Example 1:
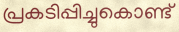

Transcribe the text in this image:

പ്രകടിപ്പിച്ചുകൊണ്ട്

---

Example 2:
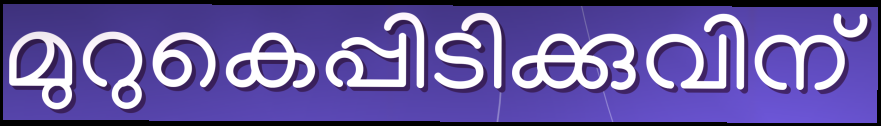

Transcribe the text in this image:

മുറുകെപ്പിടിക്കുവിന്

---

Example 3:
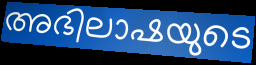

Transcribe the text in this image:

അഭിലാഷയുടെ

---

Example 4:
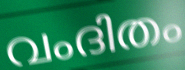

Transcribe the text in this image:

വംദിതം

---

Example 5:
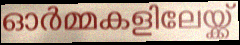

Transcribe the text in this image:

ഓർമ്മകളിലേയ്ക്ക്